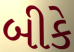
બીકે